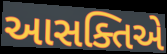
આસક્તિએ